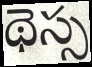
థెస్స